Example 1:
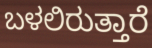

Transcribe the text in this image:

ಬಳಲಿರುತ್ತಾರೆ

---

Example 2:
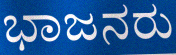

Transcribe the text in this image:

ಭಾಜನರು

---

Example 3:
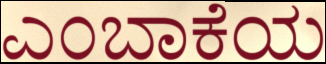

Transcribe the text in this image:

ಎಂಬಾಕೆಯ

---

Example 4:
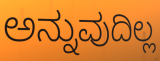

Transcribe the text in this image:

ಅನ್ನುವುದಿಲ್ಲ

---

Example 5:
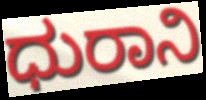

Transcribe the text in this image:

ಧುರಾನಿ